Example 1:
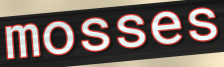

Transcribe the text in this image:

mosses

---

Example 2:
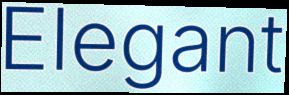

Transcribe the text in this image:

Elegant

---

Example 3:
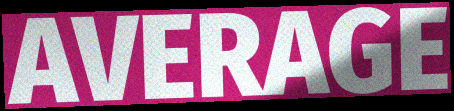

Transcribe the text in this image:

AVERAGE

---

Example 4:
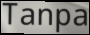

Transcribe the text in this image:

Tanpa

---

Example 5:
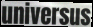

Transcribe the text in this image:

universus